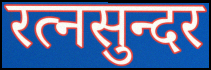
रत्नसुन्दर